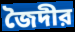
জৈদীর